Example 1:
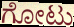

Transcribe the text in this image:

ಗೋಟು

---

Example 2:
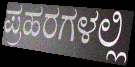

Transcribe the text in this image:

ಪ್ರಹರಗಳಲ್ಲಿ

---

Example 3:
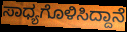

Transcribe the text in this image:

ಸಾಧ್ಯಗೊಳಿಸಿದ್ದಾನೆ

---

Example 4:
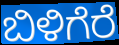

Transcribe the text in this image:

ಬಿಳಿಗೆರೆ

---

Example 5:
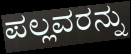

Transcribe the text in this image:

ಪಲ್ಲವರನ್ನು